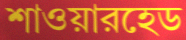
শাওয়ারহেড